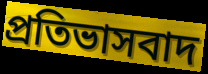
প্রতিভাসবাদ